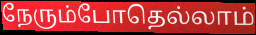
நேரும்போதெல்லாம்